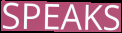
SPEAKS